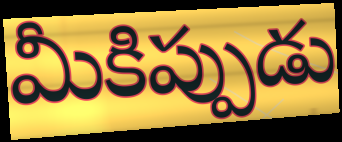
మీకిప్పుడు